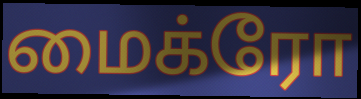
மைக்ரோ